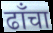
ढाँचा